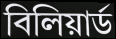
বিলিয়ার্ড